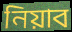
নিয়াব